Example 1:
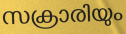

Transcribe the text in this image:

സക്രാരിയും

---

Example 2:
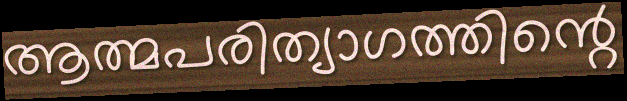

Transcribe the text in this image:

ആത്മപരിത്യാഗത്തിന്റെ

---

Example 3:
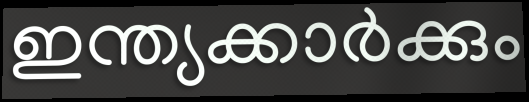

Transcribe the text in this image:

ഇന്ത്യക്കാർക്കും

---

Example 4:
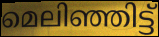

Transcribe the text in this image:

മെലിഞ്ഞിട്ട്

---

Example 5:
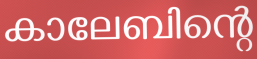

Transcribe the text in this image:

കാലേബിന്റെ